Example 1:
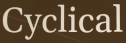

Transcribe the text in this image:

Cyclical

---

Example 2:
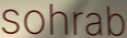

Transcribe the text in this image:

sohrab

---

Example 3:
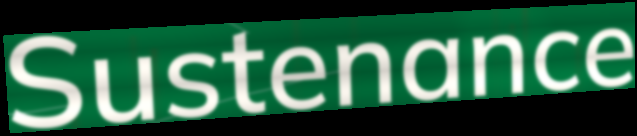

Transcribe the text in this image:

Sustenance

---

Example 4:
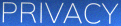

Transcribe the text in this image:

PRIVACY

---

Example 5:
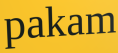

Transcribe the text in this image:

pakam